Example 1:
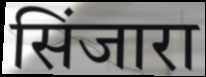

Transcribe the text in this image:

सिंजारा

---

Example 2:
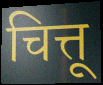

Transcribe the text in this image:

चित्तू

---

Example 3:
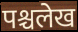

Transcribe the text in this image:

पश्चलेख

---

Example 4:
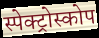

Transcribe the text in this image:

स्पेक्ट्रोस्कोप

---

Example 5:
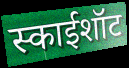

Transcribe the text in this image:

स्काईशॉट